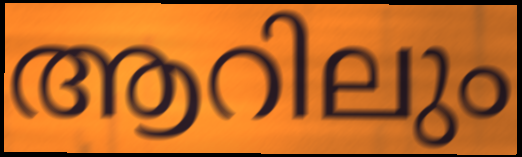
ആറിലും